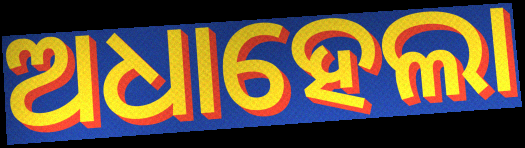
ଅଧାହେଲା